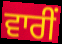
ਵਾਰੀਂ